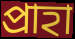
প্রাহা